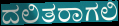
ದಲಿತರಾಗಲಿ